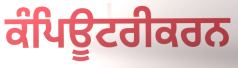
ਕੰਪਿਊਟਰੀਕਰਨ